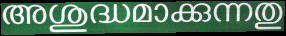
അശുദ്ധമാക്കുന്നതു